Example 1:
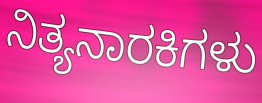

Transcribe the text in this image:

ನಿತ್ಯನಾರಕಿಗಳು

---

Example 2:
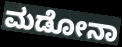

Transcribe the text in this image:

ಮಡೋನಾ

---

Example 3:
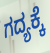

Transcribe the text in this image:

ಗದ್ಯಕ್ಕೆ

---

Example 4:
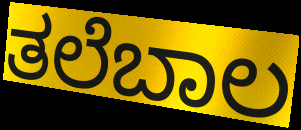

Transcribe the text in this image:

ತಲೆಬಾಲ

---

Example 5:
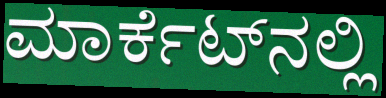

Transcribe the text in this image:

ಮಾರ್ಕೆಟ್‍ನಲ್ಲಿ